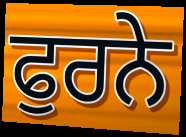
ਫੁਰਨੇ